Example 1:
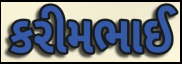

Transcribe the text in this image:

કરીમભાઈ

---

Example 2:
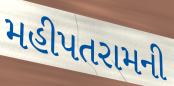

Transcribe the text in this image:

મહીપતરામની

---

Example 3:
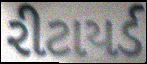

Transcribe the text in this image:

રીટાયર્ડ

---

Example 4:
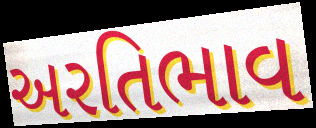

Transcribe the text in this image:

અરતિભાવ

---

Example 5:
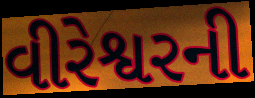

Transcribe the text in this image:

વીરેશ્વરની